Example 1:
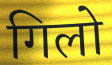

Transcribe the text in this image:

गिलो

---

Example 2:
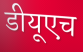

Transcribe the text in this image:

डीयूएच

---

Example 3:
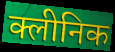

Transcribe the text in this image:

क्‍लीनिक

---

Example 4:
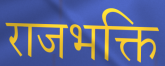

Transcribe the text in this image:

राजभक्ति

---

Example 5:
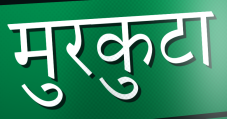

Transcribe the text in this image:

मुरकुटा